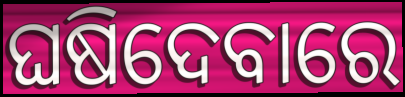
ଘଷିଦେବାରେ